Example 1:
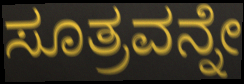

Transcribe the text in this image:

ಸೂತ್ರವನ್ನೇ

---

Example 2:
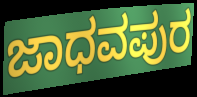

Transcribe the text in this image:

ಜಾಧವಪುರ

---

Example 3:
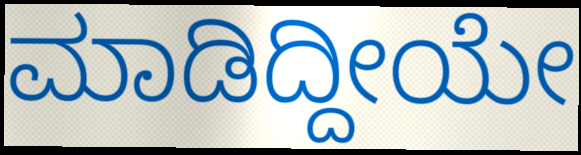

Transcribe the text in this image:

ಮಾಡಿದ್ದೀಯೇ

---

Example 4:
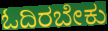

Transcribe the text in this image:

ಓದಿರಬೇಕು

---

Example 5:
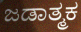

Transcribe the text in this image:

ಜಡಾತ್ಮಕ